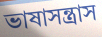
ভাষাসন্ত্রাস